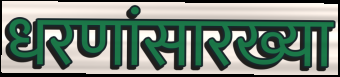
धरणांसारख्या